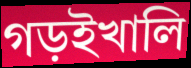
গড়ইখালি